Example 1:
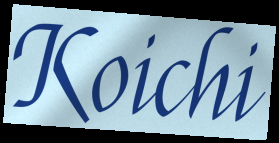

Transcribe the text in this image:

Koichi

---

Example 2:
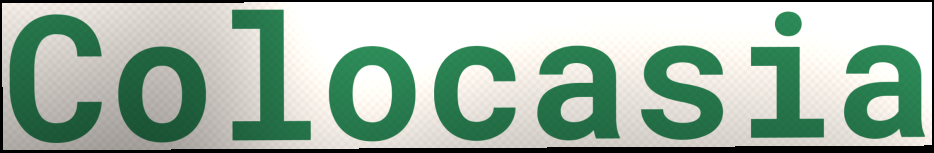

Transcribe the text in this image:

Colocasia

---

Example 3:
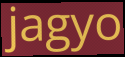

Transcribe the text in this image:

jagyo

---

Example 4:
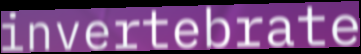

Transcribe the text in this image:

invertebrate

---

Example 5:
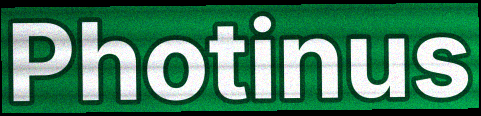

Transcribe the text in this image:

Photinus